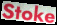
Stoke